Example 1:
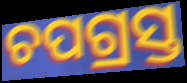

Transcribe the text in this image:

ଚପଗ୍ରସ୍ତ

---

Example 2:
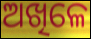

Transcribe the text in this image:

ଅଖିଳେ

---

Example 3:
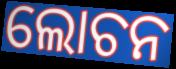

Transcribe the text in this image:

ଲୋଚନ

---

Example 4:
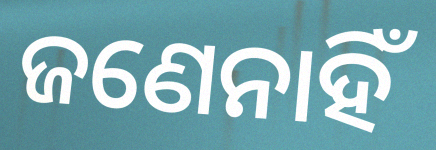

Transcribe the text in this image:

ଜଣେନାହିଁ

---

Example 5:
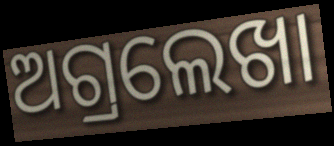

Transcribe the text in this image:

ଅଗ୍ରଲେଖା